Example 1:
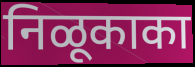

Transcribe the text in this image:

निळूकाका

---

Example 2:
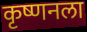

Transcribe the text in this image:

कृष्णनला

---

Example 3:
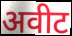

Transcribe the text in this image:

अवीट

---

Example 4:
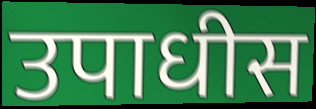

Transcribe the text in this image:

उपाधीस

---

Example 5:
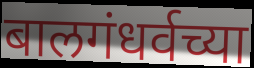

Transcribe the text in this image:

बालगंधर्वच्या